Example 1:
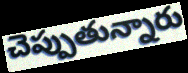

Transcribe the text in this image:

చెప్పుతున్నారు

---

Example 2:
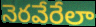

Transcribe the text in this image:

నెరవేరేలా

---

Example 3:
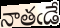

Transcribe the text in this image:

నాతఁడే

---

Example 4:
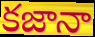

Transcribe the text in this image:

కజానా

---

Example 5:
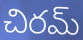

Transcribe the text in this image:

చిరమ్